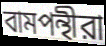
বামপন্থীরা